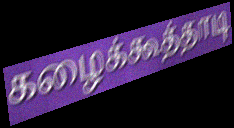
கழைக்கூத்தாடி